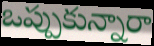
ఒప్పుకున్నారా